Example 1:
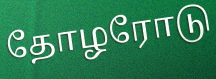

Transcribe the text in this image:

தோழரோடு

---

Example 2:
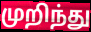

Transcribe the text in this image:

முறிந்து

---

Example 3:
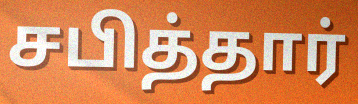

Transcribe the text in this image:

சபித்தார்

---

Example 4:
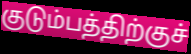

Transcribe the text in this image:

குடும்பத்திற்குச்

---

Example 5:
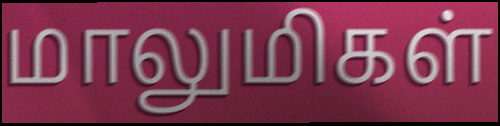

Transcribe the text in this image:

மாலுமிகள்